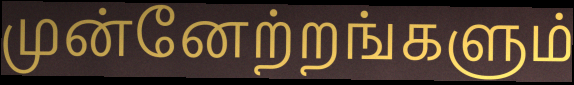
முன்னேற்றங்களும்